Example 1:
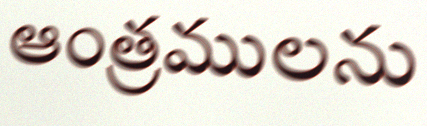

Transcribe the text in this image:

ఆంత్రములను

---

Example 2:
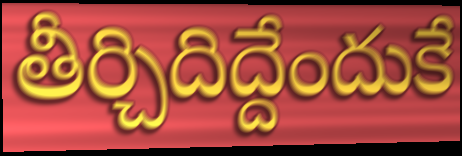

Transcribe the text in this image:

తీర్చిదిద్దేందుకే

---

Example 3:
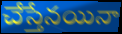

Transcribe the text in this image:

చేస్తేనయినా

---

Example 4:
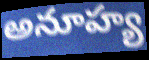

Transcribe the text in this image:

అనూహ్య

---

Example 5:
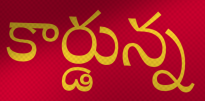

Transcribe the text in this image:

కార్డున్న